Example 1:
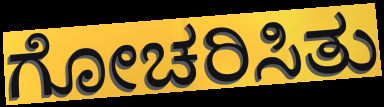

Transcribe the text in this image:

ಗೋಚರಿಸಿತು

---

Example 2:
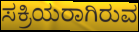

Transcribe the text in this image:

ಸಕ್ರಿಯರಾಗಿರುವ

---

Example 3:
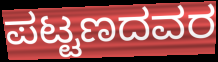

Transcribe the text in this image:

ಪಟ್ಟಣದವರ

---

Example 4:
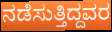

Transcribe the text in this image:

ನಡೆಸುತ್ತಿದ್ದವರ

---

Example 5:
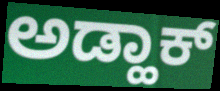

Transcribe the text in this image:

ಅಡ್ಹಾಕ್